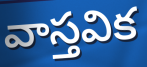
వాస్తవిక